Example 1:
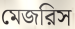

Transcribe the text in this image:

মেজরিস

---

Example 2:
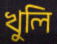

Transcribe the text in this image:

খুলি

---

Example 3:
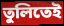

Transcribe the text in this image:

তুলিতেই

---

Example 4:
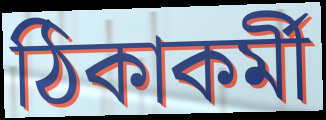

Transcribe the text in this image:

ঠিকাকর্মী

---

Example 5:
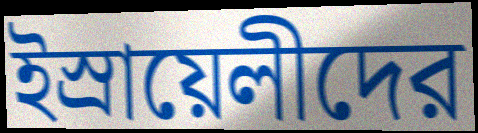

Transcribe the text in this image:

ইস্রায়েলীদের